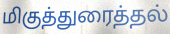
மிகுத்துரைத்தல்